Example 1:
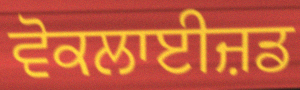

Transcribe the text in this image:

ਵੋਕਲਾਈਜ਼ਡ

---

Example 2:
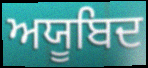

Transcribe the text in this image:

ਅਯੂਬਿਦ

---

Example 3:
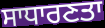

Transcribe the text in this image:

ਸਾਧਾਰਣਤਾ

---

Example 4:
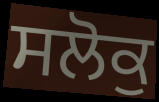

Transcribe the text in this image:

ਸਲੋਕੁ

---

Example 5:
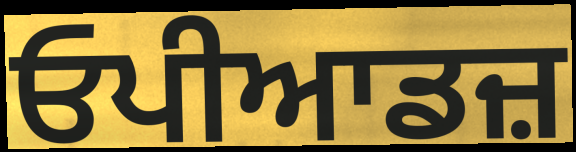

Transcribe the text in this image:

ਓਪੀਆਡਜ਼